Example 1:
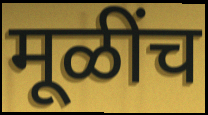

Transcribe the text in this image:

मूळींच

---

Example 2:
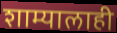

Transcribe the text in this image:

शाम्यालाही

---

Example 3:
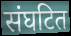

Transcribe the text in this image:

संघटित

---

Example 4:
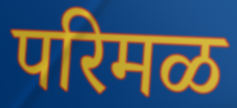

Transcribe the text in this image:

परिमळ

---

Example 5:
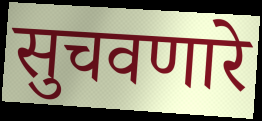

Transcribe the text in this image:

सुचवणारे